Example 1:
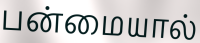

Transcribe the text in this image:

பன்மையால்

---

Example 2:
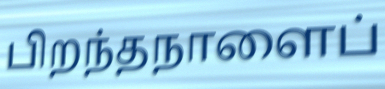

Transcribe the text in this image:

பிறந்தநாளைப்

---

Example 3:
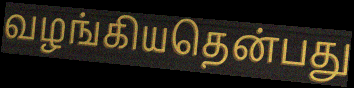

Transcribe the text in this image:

வழங்கியதென்பது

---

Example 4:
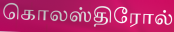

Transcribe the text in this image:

கொலஸ்திரோல்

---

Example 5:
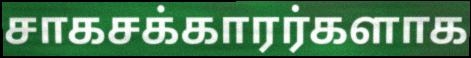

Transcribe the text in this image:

சாகசக்காரர்களாக